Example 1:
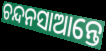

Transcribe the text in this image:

ଚନ୍ଦନସାଆନ୍ତେ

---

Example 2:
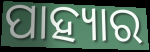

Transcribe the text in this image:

ପାହ୍ୟାର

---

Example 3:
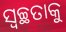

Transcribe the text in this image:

ସ୍ବଚ୍ଛତାକୁ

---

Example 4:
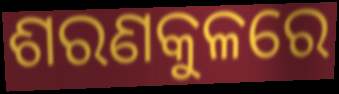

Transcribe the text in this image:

ଶରଣକୁଳରେ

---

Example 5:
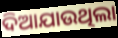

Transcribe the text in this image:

ଦିଆଯାଉଥିଲା